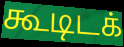
கூடிடக்